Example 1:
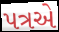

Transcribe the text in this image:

પત્રએ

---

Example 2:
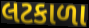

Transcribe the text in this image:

લટકાળા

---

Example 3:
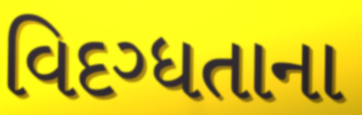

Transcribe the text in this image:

વિદગ્ધતાના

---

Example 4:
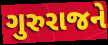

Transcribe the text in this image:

ગુરુરાજને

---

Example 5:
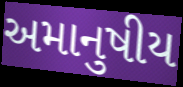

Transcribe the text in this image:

અમાનુષીય